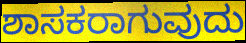
ಶಾಸಕರಾಗುವುದು